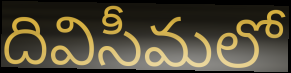
దివిసీమలో